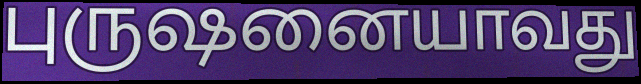
புருஷனையாவது